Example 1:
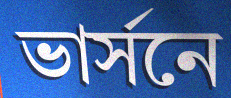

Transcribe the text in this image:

ভার্সনে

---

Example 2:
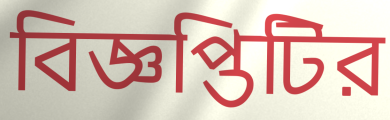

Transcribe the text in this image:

বিজ্ঞপ্তিটির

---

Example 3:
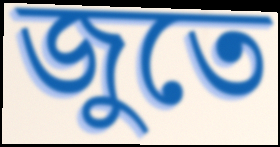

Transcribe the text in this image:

জুতে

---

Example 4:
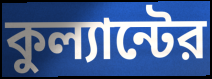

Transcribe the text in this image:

কুল্যান্টের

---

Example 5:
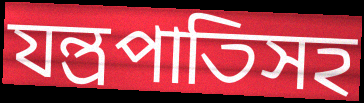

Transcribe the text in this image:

যন্ত্রপাতিসহ